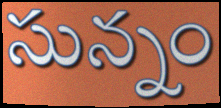
సున్నం